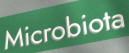
Microbiota